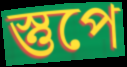
স্তুপে